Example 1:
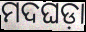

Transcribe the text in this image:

ମଦଘଡ଼ା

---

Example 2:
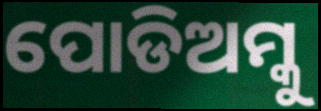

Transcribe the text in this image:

ପୋଡିଅମ୍କୁ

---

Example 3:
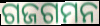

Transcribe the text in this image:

ଗଜଗମନ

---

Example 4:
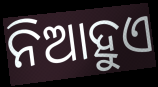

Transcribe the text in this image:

ନିଆହୁଏ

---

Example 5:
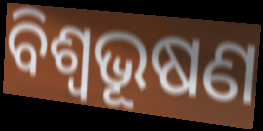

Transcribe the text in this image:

ବିଶ୍ବଭୂଷଣ